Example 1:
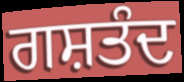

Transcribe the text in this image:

ਗਸ਼ਤੰਦ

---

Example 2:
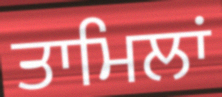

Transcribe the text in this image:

ਤਾਮਿਲਾਂ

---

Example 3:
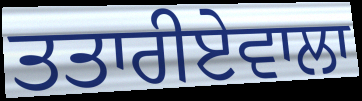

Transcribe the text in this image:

ਤਤਾਰੀਏਵਾਲਾ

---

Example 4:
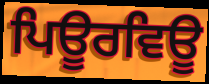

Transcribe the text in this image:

ਪਿਊਰਵਿਊ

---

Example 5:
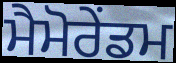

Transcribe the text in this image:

ਮੈਮੋਰੇਂਡਮ